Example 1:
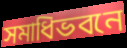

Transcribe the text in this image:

সমাধিভবনে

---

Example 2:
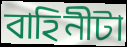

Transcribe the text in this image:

বাহিনীটা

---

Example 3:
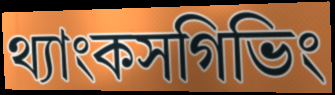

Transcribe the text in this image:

থ্যাংকসগিভিং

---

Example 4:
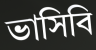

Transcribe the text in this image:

ভাসিবি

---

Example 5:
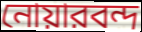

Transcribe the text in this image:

নোয়ারবন্দ